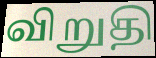
விறுதி